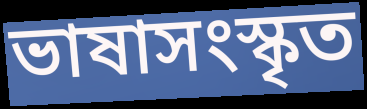
ভাষাসংস্কৃত